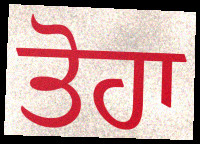
ਤੋਹਾ